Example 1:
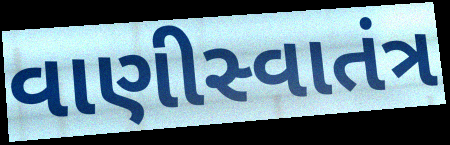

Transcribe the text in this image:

વાણીસ્વાતંત્ર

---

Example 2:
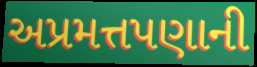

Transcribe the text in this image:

અપ્રમત્તપણાની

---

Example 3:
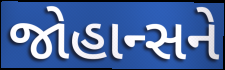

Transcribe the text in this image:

જોહાન્સને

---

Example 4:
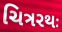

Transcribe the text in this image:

ચિત્રરથઃ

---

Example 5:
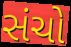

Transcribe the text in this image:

સંચો